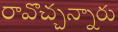
రావొచ్చన్నారు